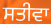
ਸਤੀਵਾ